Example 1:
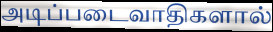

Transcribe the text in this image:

அடிப்படைவாதிகளால்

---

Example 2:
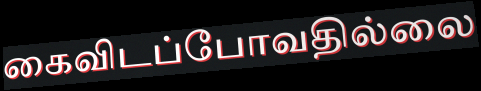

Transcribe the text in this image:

கைவிடப்போவதில்லை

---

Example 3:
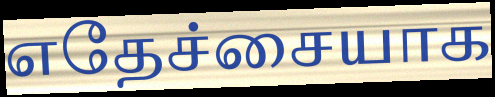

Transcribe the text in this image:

எதேச்சையாக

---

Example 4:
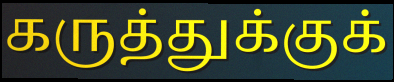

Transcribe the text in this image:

கருத்துக்குக்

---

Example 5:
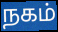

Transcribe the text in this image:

நகம்